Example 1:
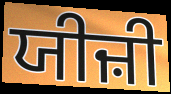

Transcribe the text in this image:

ਯੀਜ਼ੀ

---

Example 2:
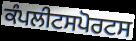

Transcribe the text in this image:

ਕੰਪਲੀਟਸਪੋਰਟਸ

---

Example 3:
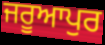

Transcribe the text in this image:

ਜਰੂਆਪੁਰ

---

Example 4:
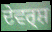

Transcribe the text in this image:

ਦੇਵਰ੍ਸ਼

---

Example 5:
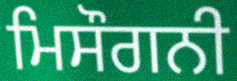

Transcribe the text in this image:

ਮਿਸੌਗਨੀ